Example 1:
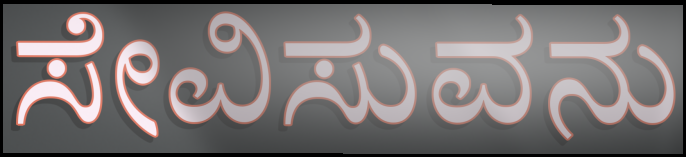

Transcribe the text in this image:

ಸೇವಿಸುವನು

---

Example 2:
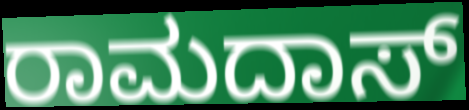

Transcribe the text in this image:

ರಾಮದಾಸ್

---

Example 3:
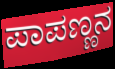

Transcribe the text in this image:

ಪಾಪಣ್ಣನ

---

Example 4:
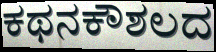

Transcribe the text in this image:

ಕಥನಕೌಶಲದ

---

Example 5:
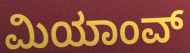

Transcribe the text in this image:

ಮಿಯಾಂವ್